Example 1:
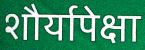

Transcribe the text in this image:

शौर्यापेक्षा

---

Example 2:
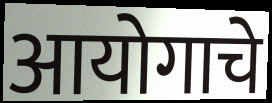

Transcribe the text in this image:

आयोगाचे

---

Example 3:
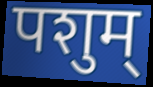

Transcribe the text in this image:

पशुम्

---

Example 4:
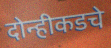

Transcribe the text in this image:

दोन्हीकडचे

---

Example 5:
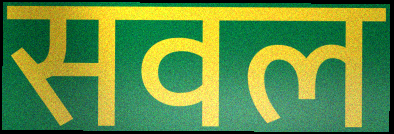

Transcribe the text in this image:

सवल